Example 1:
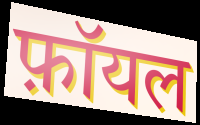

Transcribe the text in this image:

फ़ॉयल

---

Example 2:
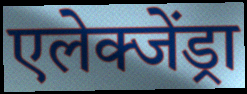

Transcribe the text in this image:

एलेक्जेंड्रा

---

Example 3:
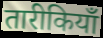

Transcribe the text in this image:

तारीकियाँ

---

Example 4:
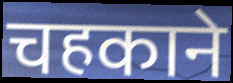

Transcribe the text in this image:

चहकाने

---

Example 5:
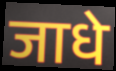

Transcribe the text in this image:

जाधे